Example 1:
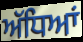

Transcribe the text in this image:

ਅੱਧਿਆਂ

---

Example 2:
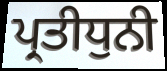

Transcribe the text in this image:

ਪ੍ਰਤੀਧੁਨੀ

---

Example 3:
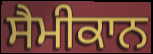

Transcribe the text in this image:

ਸੈਮੀਕਾਨ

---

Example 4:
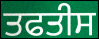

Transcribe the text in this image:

ਤਫਤੀਸ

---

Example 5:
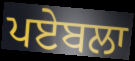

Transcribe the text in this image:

ਪਏਬਲਾ